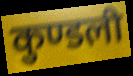
कुण्डली